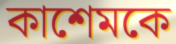
কাশেমকে